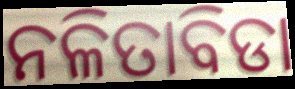
ନଳିତାବିଡା